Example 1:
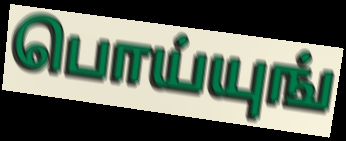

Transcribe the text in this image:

பொய்யுங்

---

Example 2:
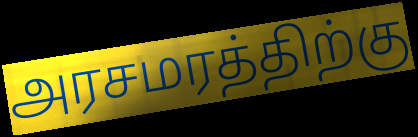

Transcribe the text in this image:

அரசமரத்திற்கு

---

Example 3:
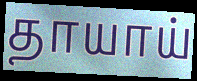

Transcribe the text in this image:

தாயாய்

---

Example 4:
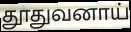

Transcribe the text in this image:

தூதுவனாய்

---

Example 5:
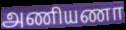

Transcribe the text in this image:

அணியணா